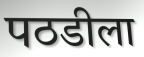
पठडीला